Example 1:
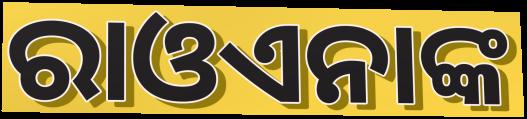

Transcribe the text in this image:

ରାଓଏନାଙ୍କ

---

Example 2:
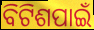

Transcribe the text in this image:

ବିଟିଶପାଇଁ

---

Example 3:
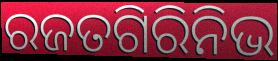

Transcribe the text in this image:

ରଜତଗିରିନିଭ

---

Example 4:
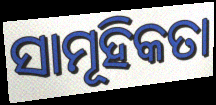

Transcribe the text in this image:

ସାମୂହିକତା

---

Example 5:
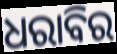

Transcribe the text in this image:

ଧରାବିର